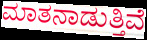
ಮಾತನಾಡುತ್ತಿವೆ